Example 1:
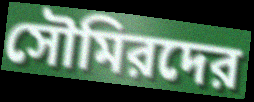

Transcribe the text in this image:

সৌমিরদের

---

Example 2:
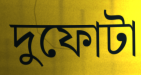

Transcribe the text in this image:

দুফোটা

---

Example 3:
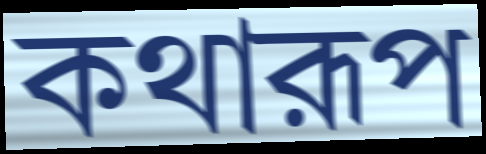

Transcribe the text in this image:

কথারূপ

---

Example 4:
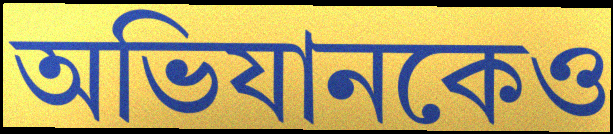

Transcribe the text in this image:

অভিযানকেও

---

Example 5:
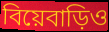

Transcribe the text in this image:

বিয়েবাড়িও